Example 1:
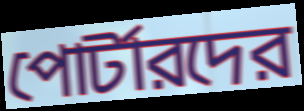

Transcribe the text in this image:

পোর্টারদের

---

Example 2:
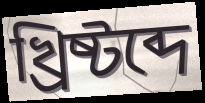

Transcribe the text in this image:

খ্রিষ্টব্দে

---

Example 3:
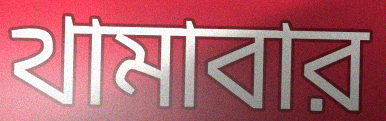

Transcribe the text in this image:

থামাবার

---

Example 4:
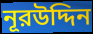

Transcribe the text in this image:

নূরউদ্দিন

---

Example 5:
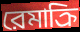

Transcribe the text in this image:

রেমাক্রি